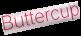
Buttercup